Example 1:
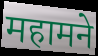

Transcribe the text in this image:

महामने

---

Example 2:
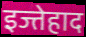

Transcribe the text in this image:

इज्तेहाद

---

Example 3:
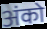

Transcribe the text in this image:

अंको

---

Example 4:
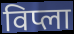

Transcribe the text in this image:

विप्ला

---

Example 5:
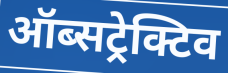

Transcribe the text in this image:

ऑब्सट्रेक्टिव